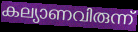
കല്യാണവിരുന്ന്